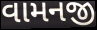
વામનજી